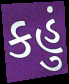
કહું